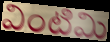
వింటిమి